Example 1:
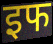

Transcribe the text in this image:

इफ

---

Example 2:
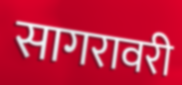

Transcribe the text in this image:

सागरावरी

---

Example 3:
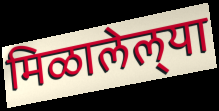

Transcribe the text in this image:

मिळालेल्या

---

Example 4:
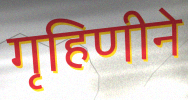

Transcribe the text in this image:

गृहिणीने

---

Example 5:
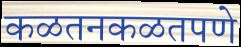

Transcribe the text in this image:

कळतनकळतपणे